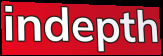
indepth